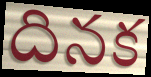
దినక